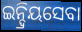
ଇନ୍ଦ୍ରିୟସେବା